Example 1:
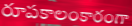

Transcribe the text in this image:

రూపకాలంకారంగా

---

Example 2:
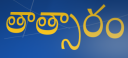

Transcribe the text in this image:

తాత్సారం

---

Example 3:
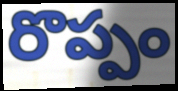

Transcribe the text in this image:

రొప్పం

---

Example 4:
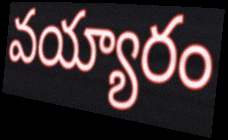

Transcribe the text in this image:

వయ్యారం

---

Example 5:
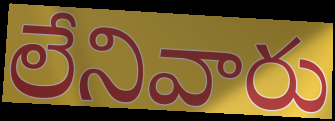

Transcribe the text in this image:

లేనివారు